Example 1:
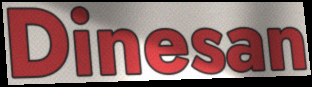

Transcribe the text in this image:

Dinesan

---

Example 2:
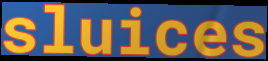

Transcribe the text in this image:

sluices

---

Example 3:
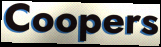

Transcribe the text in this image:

Coopers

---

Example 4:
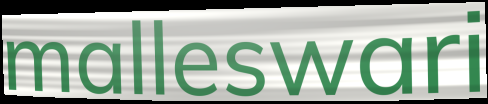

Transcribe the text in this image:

malleswari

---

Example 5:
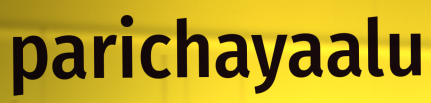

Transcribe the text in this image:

parichayaalu